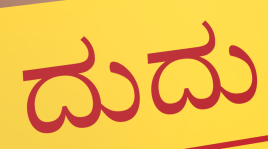
ದುದು